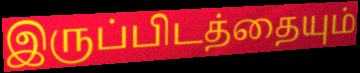
இருப்பிடத்தையும்